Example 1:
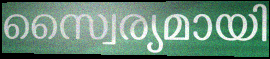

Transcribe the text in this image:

സ്വൈര്യമായി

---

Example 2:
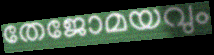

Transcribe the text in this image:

തേജോമയവും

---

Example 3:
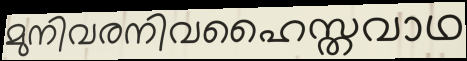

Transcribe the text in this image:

മുനിവരനിവഹൈസ്തവാഥ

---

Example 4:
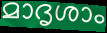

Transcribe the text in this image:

മാദൃശാം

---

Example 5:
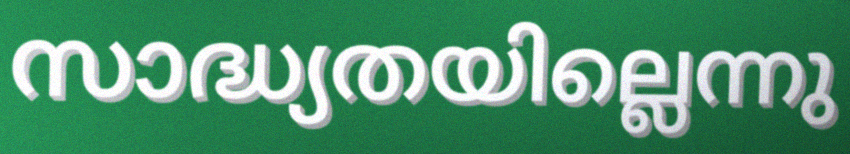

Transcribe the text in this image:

സാദ്ധ്യതയില്ലെന്നു